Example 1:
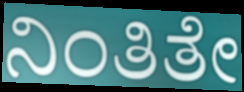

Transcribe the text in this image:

ನಿಂತಿತೇ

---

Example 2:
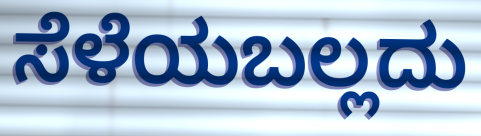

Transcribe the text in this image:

ಸೆಳೆಯಬಲ್ಲದು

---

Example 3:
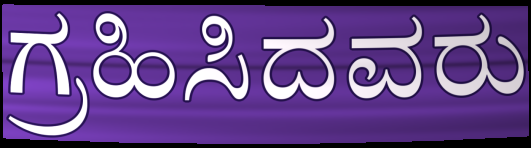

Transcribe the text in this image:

ಗ್ರಹಿಸಿದವರು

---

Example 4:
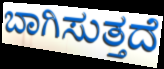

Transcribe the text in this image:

ಬಾಗಿಸುತ್ತದೆ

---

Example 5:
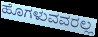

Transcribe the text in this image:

ಹೊಗಳುವವರಲ್ಲ